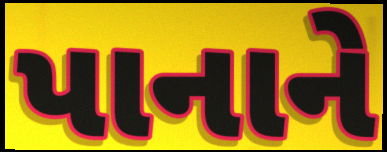
પાનાને